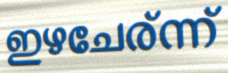
ഇഴചേര്ന്ന്